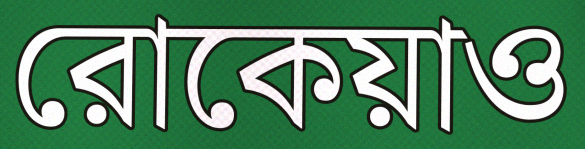
রোকেয়াও